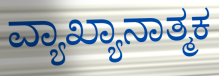
ವ್ಯಾಖ್ಯಾನಾತ್ಮಕ